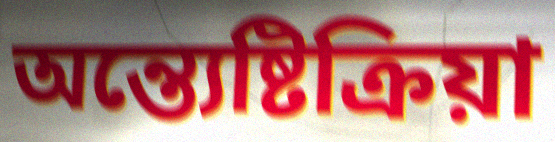
অন্ত্যেষ্টিক্ৰিয়া